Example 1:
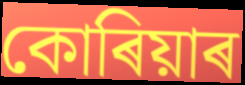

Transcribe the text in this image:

কোৰিয়াৰ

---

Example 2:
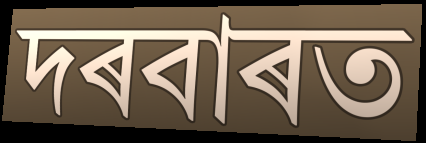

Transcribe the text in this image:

দৰবাৰত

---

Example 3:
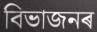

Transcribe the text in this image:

বিভাজনৰ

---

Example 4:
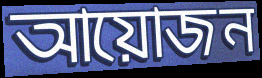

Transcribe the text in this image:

আয়োজন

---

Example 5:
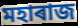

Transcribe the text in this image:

মহাৰাজ